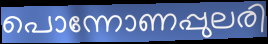
പൊന്നോണപ്പുലരി